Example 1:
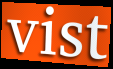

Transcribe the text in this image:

vist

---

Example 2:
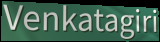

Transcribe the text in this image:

Venkatagiri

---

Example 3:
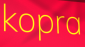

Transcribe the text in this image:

kopra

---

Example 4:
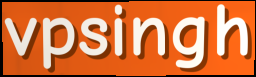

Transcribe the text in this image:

vpsingh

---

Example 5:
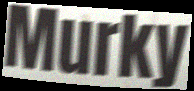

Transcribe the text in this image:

Murky